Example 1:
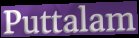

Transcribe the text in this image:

Puttalam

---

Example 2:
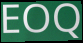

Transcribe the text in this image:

EOQ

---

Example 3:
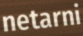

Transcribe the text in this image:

netarni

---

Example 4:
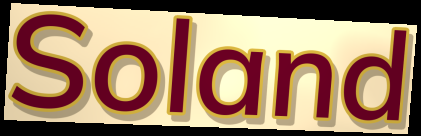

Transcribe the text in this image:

Soland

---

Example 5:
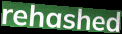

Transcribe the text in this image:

rehashed